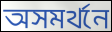
অসমর্থনে